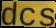
dcs